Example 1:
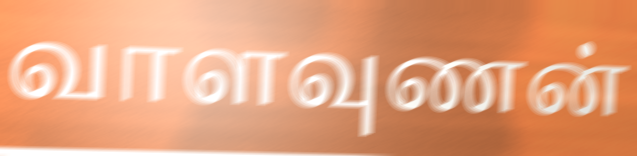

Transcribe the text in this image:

வாளவுணன்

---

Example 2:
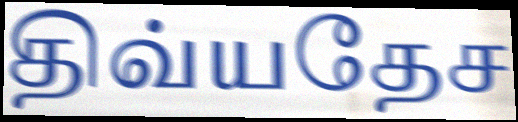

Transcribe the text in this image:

திவ்யதேச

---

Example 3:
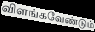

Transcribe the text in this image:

விளங்கவேண்டும்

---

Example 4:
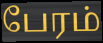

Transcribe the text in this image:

பேரம்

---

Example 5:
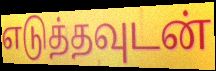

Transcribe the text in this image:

எடுத்தவுடன்